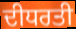
ਦੀਧਰਤੀ